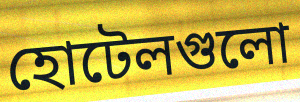
হোটেলগুলো